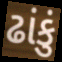
ઢાંકું